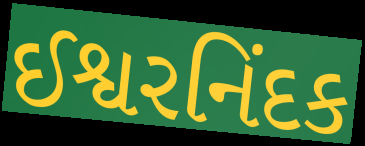
ઈશ્વરનિંદક